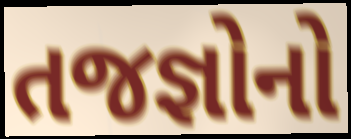
તજજ્ઞોનો